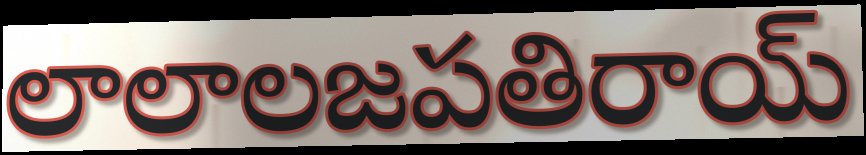
లాలాలజపతిరాయ్